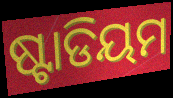
ଷ୍ଟାଡିୟମ